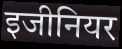
इजीनियर